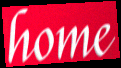
home